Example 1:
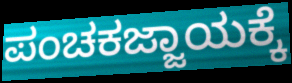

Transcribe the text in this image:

ಪಂಚಕಜ್ಜಾಯಕ್ಕೆ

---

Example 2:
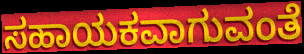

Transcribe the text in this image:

ಸಹಾಯಕವಾಗುವಂತೆ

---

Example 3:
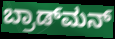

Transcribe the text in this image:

ಬ್ರಾಡ್‌ಮನ್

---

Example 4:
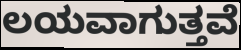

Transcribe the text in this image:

ಲಯವಾಗುತ್ತವೆ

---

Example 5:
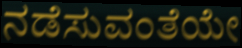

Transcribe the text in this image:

ನಡೆಸುವಂತೆಯೇ